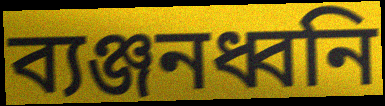
ব্যঞ্জনধ্বনি